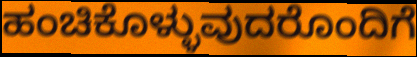
ಹಂಚಿಕೊಳ್ಳುವುದರೊಂದಿಗೆ